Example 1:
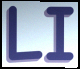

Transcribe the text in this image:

LI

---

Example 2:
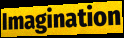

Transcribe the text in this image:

Imagination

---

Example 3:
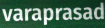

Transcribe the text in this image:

varaprasad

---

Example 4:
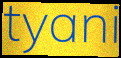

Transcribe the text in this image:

tyani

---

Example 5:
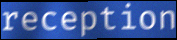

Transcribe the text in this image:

reception